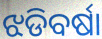
ଝଡିବର୍ଷା